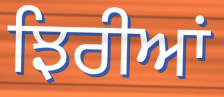
ਝਿਰੀਆਂ